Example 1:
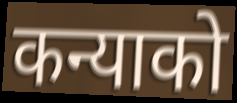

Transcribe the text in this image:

कन्याको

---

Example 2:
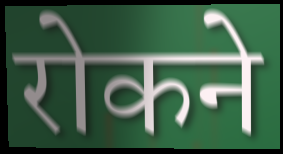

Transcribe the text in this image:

रोकने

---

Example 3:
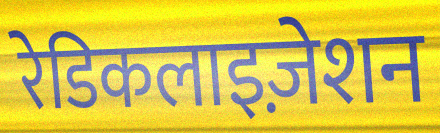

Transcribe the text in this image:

रेडिकलाइज़ेशन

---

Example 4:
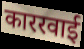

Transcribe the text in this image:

काररवाई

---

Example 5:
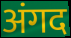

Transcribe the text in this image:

अंगद